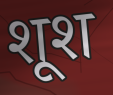
शूश